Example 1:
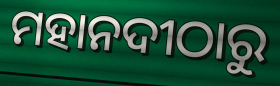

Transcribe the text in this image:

ମହାନଦୀଠାରୁ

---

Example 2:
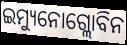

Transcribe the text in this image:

ଇମ୍ୟୁନୋଗ୍ଲୋବିନ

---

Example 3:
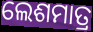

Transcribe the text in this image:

ଲେଶମାତ୍ର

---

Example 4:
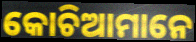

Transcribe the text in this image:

କୋଚିଆମାନେ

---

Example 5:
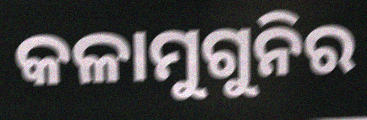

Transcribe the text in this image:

କଳାମୁଗୁନିର